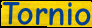
Tornio